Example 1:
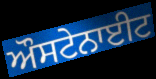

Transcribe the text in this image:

ਔਸਟੇਨਾਈਟ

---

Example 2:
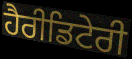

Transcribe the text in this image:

ਹੈਰੀਡਿਟੇਰੀ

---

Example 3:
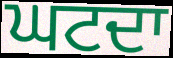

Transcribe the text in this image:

ਘਟਦਾ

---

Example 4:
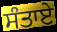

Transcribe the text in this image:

ਸੰਤਾਏ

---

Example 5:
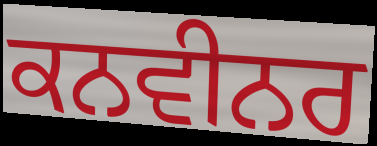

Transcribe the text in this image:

ਕਨਵੀਨਰ